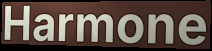
Harmone